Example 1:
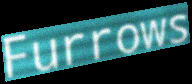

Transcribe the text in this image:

Furrows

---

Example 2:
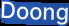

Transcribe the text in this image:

Doong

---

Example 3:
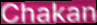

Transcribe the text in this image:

Chakan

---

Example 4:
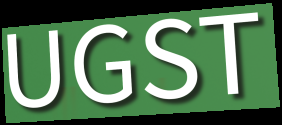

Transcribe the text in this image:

UGST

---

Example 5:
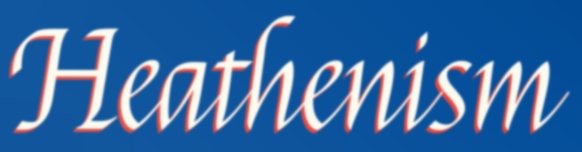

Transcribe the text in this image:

Heathenism